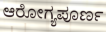
ಆರೋಗ್ಯಪೂರ್ಣ